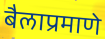
बैलाप्रमाणे